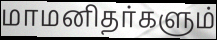
மாமனிதர்களும்